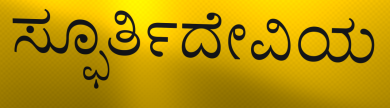
ಸ್ಫೂರ್ತಿದೇವಿಯ